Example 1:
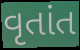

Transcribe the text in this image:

વૃતાંત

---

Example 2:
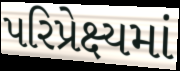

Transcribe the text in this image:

પરિપ્રેક્ષ્યમાં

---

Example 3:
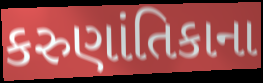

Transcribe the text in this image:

કરુણાંતિકાના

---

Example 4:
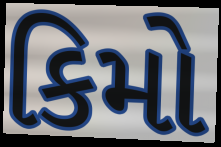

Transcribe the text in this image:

કિમો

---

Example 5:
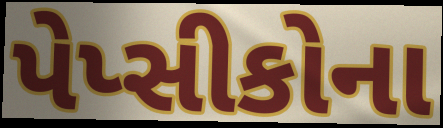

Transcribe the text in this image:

પેપ્સીકોના